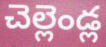
చెల్లెండ్ల